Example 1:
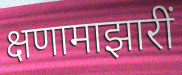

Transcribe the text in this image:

क्षणामाझारीं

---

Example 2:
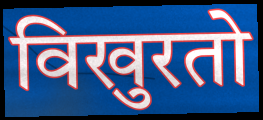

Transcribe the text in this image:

विखुरतो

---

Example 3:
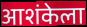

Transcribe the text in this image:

आशंकेला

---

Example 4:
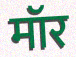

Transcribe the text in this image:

मॉर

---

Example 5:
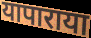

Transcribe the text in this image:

यापाराया